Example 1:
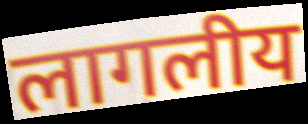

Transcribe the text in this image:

लागलीय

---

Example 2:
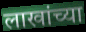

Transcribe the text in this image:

लाखांच्या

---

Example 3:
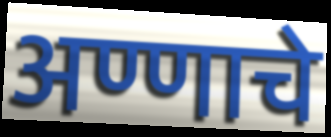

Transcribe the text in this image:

अण्णाचे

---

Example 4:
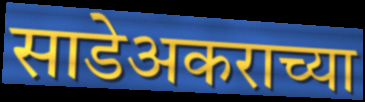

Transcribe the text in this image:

साडेअकराच्या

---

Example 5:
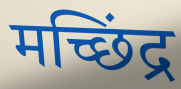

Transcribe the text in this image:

मच्छिंद्र